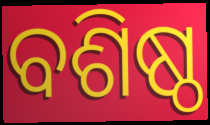
ବଶିଷ୍ଠ